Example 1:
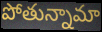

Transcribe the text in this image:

పోతున్నామా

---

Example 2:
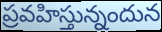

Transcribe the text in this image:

ప్రవహిస్తున్నందున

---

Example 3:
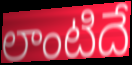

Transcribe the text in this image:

లాంటిదే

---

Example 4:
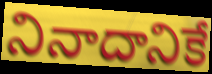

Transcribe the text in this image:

నినాదానికే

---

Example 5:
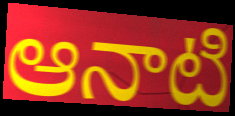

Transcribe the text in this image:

ఆనాటి